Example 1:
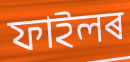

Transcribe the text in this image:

ফাইলৰ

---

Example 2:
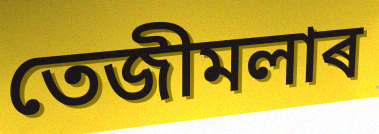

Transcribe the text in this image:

তেজীমলাৰ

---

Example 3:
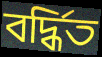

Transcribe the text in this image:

বৰ্দ্ধিত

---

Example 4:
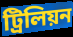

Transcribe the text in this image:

ট্ৰিলিয়ন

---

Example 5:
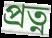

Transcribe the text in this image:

প্ৰত্ন